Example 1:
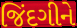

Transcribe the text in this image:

જિંદગીને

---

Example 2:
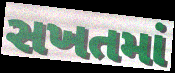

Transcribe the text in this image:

સખતમાં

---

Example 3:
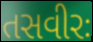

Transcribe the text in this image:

તસવીરઃ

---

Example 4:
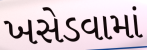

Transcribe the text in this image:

ખસેડવામાં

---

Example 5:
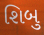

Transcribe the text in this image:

શિબુ